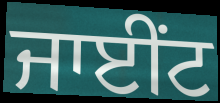
ਜਾਈਂਟ